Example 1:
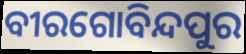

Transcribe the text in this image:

ବୀରଗୋବିନ୍ଦପୁର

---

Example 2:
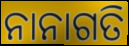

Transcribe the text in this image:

ନାନାଗତି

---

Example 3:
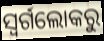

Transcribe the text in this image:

ସ୍ଵର୍ଗଲୋକରୁ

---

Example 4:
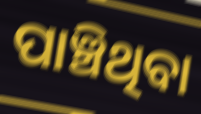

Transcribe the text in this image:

ପାଞ୍ଚିଥିବା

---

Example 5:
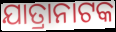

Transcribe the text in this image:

ଯାତ୍ରାନାଟକ